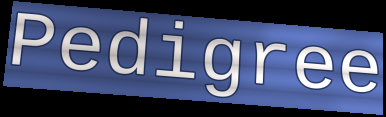
Pedigree